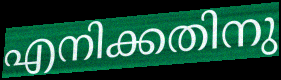
എനിക്കതിനു